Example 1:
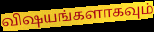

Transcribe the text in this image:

விஷயங்களாகவும்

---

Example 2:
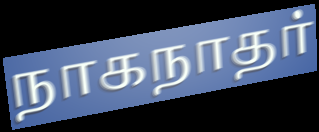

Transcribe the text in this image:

நாகநாதர்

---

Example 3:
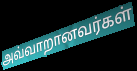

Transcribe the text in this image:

அவ்வாறானவர்கள்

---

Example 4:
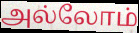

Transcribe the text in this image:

அல்லோம்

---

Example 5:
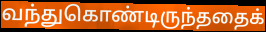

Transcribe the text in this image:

வந்துகொண்டிருந்ததைக்